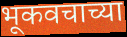
भूकवचाच्या